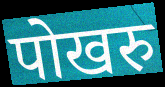
पोखरु